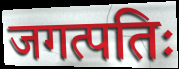
जगत्पतिः